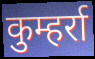
कुम्हर्रा